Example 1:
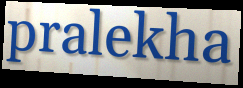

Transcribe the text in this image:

pralekha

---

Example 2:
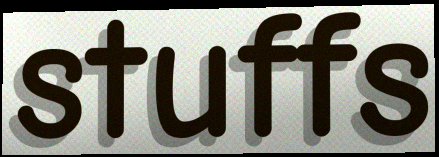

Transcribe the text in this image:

stuffs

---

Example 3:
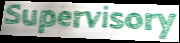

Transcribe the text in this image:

Supervisory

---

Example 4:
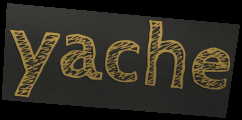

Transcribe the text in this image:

yache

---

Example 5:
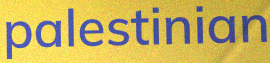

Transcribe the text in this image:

palestinian